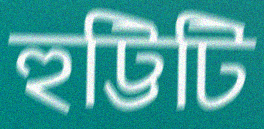
হুট্টিটি